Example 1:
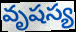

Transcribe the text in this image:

వృషస్య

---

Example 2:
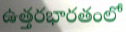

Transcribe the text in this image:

ఉత్తరభారతంలో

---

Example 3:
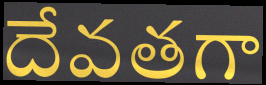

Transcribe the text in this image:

దేవతగా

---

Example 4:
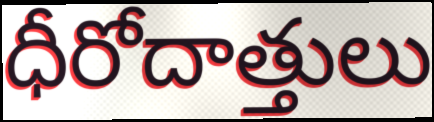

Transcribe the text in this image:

ధీరోదాత్తులు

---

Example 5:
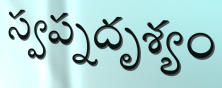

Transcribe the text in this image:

స్వప్నదృశ్యం